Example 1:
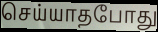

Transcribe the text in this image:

செய்யாதபோது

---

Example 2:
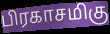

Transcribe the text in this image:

பிரகாசமிகு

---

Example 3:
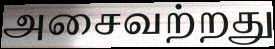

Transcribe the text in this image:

அசைவற்றது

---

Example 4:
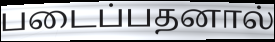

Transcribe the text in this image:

படைப்பதனால்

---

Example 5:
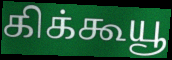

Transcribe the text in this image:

கிக்கூயூ